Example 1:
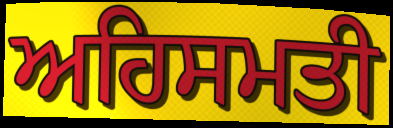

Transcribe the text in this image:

ਅਹਿਸਮਤੀ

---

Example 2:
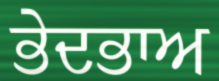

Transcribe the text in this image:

ਭੇਦਭਾਅ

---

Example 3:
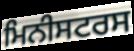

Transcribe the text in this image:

ਮਿਨੀਸਟਰਸ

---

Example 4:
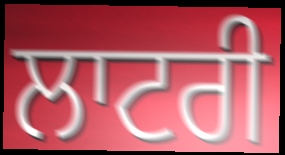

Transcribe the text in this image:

ਲਾਟਰੀ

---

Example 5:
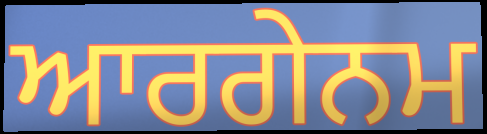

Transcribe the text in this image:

ਆਰਗੇਨਮ